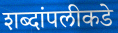
शब्दांपलीकडे